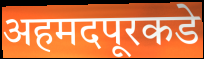
अहमदपूरकडे